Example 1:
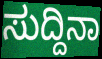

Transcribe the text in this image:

ಸುದ್ದಿನಾ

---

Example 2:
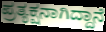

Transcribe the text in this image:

ಪ್ರತ್ಯಕ್ಷನಾಗಿದ್ದಾನೆ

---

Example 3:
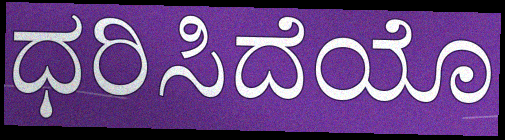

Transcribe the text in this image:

ಧರಿಸಿದೆಯೊ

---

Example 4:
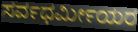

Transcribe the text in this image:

ಸರ್ವಧರ್ಮೀಯರ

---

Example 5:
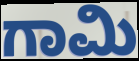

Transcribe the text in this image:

ಗಾಮಿ